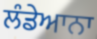
ਲੰਡੇਆਨਾ